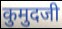
कुमुदजी